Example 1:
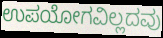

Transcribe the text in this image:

ಉಪಯೋಗವಿಲ್ಲದವು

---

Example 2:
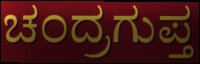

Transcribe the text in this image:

ಚಂದ್ರಗುಪ್ತ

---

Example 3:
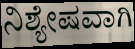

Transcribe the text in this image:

ನಿಶ್ಯೇಷವಾಗಿ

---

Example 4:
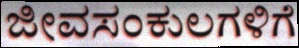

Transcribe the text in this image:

ಜೀವಸಂಕುಲಗಳಿಗೆ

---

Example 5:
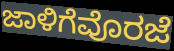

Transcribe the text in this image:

ಜಾಳಿಗೆವೊರಜೆ